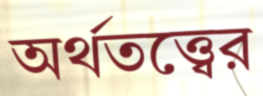
অর্থতত্ত্বের